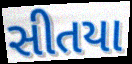
સીતયા